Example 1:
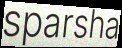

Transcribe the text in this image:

sparsha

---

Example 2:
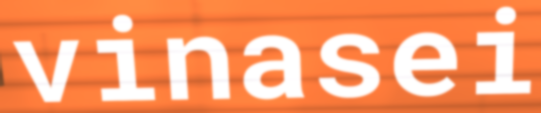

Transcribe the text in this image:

vinasei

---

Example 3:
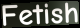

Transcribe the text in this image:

Fetish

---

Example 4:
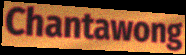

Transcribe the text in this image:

Chantawong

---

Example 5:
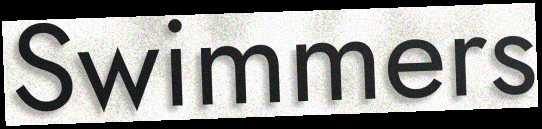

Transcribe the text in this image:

Swimmers